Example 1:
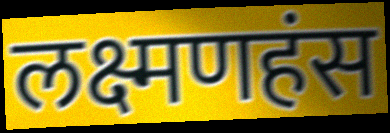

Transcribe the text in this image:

लक्ष्मणहंस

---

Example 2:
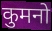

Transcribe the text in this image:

कुमनो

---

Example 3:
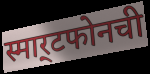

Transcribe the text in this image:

स्मार्टफोनची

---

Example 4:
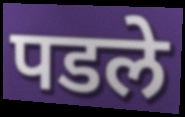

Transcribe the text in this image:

पडले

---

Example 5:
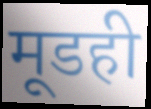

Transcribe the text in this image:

मूडही